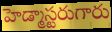
హెడ్మాస్టరుగారు